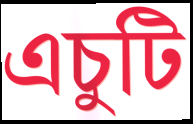
এচুটি